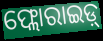
ଫ୍ଲୋରାଇଡ଼୍